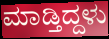
ಮಾಡ್ತಿದ್ದಳು